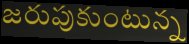
జరుపుకుంటున్న